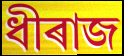
ধীৰাজ